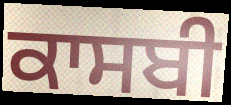
ਕਾਸਬੀ